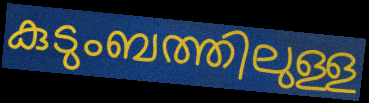
കുടുംബത്തിലുള്ള